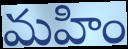
మహిం